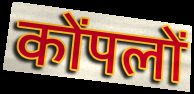
कोंपलों